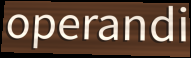
operandi